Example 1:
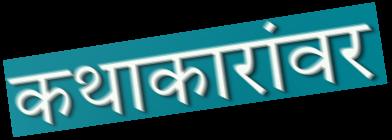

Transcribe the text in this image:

कथाकारांवर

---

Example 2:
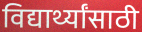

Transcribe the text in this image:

विद्यार्थ्यांसाठी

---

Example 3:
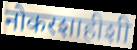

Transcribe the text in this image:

नोकरशाहीशी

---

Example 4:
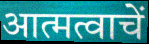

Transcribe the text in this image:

आत्मत्वाचें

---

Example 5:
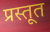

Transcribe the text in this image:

प्रस्तूत